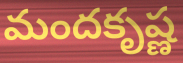
మందకృష్ణ